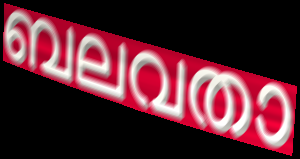
ബലവതാ